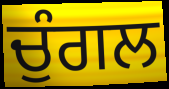
ਚੁੰਗਲ